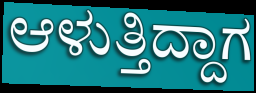
ಆಳುತ್ತಿದ್ದಾಗ